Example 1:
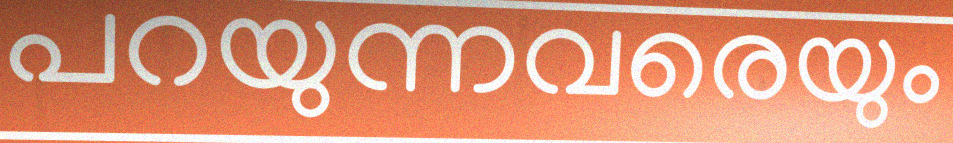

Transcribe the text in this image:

പറയുന്നവരെയും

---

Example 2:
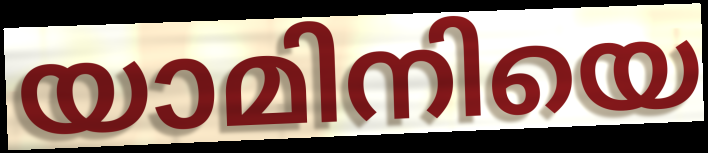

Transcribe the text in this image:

യാമിനിയെ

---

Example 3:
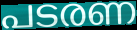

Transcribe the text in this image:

പടരണ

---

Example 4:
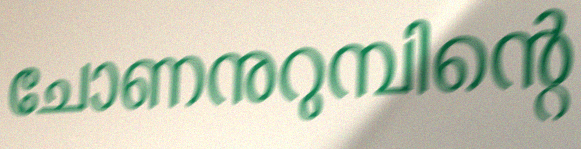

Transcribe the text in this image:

ചോണനുറുമ്പിന്റെ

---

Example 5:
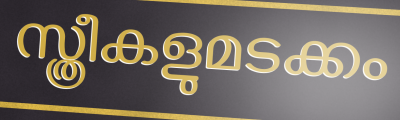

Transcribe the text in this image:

സ്ത്രീകളുമടക്കം